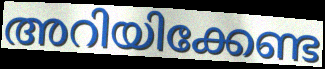
അറിയിക്കേണ്ട